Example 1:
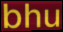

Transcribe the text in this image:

bhu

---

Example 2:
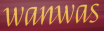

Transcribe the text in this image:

wanwas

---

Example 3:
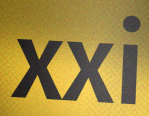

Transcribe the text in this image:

xxi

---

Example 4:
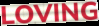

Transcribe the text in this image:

LOVING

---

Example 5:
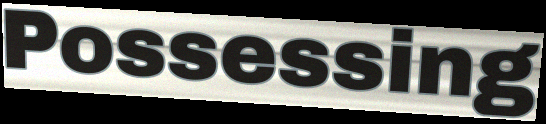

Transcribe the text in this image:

Possessing